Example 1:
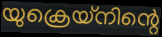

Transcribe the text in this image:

യുക്രെയ്നിന്റെ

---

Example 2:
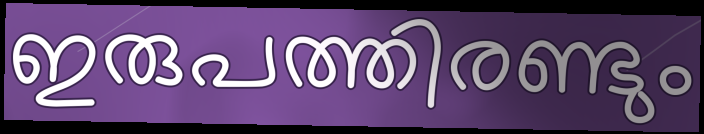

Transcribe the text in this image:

ഇരുപത്തിരണ്ടും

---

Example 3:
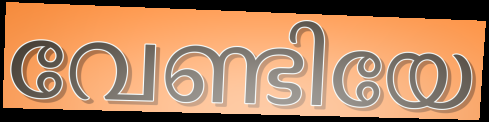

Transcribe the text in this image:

വേണ്ടിയേ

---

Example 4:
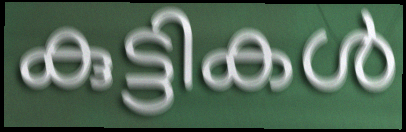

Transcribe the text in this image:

കുട്ടികൾ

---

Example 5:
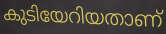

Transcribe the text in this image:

കുടിയേറിയതാണ്